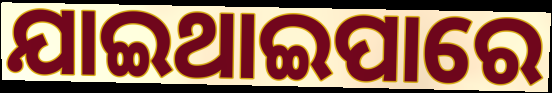
ଯାଇଥାଇପାରେ